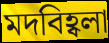
মদবিহ্বলা